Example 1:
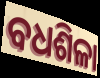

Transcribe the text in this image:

ବଧଶିଳା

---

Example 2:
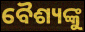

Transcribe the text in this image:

ବୈଶ୍ୟଙ୍କୁ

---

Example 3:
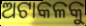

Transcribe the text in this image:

ଅଟାକଳକୁ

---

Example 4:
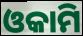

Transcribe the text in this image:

ଓକାମି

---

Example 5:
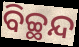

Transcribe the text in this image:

ବିଚ୍ଛନ୍ଦ